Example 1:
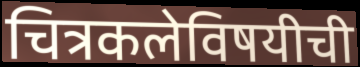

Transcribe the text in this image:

चित्रकलेविषयीची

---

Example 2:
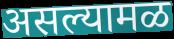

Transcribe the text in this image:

असल्यामळ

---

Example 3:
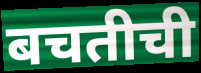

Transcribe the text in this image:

बचतीची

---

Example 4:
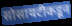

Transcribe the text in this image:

सोसायटीकडून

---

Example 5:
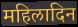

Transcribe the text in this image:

महिलादिन